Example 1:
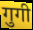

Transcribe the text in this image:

गुगी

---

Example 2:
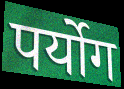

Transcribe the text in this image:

पर्योग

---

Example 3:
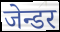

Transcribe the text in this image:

जेन्डर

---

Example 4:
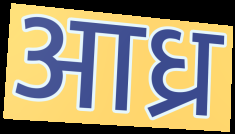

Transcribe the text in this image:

आध्र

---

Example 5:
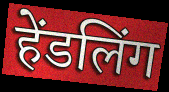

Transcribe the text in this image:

हेंडलिंग